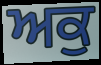
ਅਕੁ